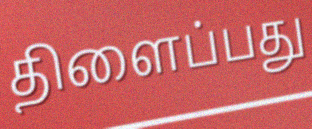
திளைப்பது